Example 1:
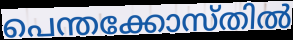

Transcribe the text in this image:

പെന്തക്കോസ്തിൽ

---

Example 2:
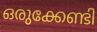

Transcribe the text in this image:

ഒരുക്കേണ്ടി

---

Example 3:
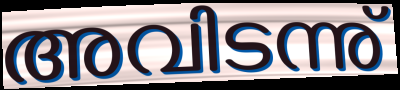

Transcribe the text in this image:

അവിടന്നു്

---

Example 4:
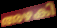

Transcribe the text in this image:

അഴകി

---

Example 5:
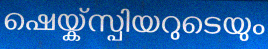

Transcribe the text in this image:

ഷെയ്ക്സ്പിയറുടെയും